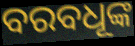
ବରବଧୂଙ୍କ